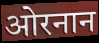
ओरनान